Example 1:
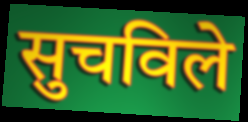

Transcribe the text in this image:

सुचविले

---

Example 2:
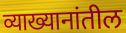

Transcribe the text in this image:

व्याख्यानांतील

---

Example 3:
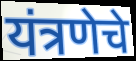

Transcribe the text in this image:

यंत्रणेचे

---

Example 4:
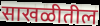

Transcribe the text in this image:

साखळीतील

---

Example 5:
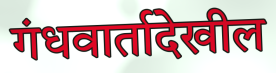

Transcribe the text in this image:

गंधवार्तादेखील